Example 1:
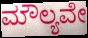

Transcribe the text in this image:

ಮೌಲ್ಯವೇ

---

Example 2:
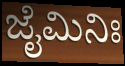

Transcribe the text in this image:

ಜೈಮಿನಿಃ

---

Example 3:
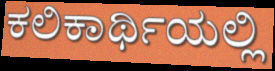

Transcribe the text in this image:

ಕಲಿಕಾರ್ಥಿಯಲ್ಲಿ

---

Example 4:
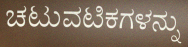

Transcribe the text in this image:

ಚಟುವಟಿಕಗಳನ್ನು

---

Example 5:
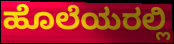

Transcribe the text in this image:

ಹೊಲೆಯರಲ್ಲಿ